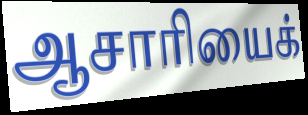
ஆசாரியைக்